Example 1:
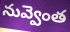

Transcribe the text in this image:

నువ్వెంత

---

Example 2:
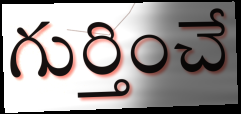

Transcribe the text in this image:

గుర్తించే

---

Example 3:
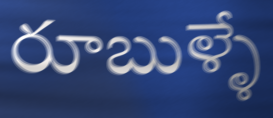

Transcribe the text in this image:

రూబుళ్ళే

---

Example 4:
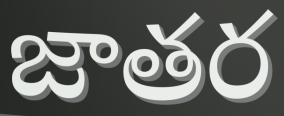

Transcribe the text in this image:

జాతర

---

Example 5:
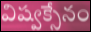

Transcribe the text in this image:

విష్వక్సేనం